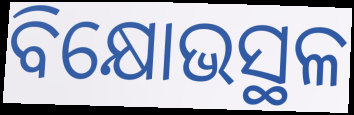
ବିକ୍ଷୋଭସ୍ଥଳ